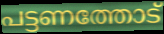
പട്ടണത്തോട്